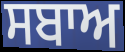
ਸਬਾਅ